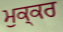
ਮੁਕ੍ਕਰ